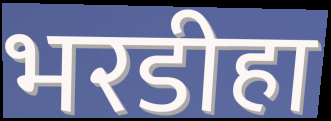
भरडीहा